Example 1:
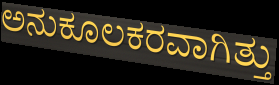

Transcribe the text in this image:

ಅನುಕೂಲಕರವಾಗಿತ್ತು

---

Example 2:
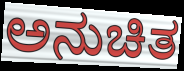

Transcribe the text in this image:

ಅನುಚಿತ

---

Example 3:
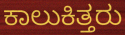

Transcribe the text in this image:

ಕಾಲುಕಿತ್ತರು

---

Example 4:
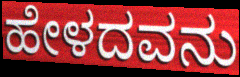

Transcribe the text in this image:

ಹೇಳದವನು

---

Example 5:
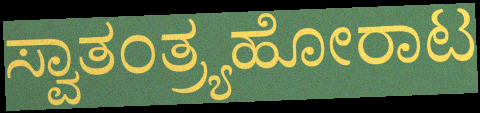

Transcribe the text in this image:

ಸ್ವಾತಂತ್ರ್ಯಹೋರಾಟ